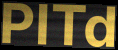
PITd